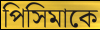
পিসিমাকে